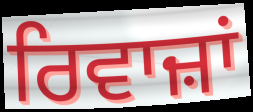
ਰਿਵਾਜ਼ਾਂ